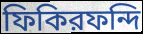
ফিকিরফন্দি